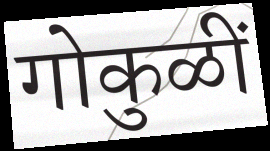
गोकुळीं